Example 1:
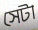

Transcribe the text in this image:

সেটা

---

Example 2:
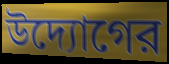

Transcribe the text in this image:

উদ্যোগের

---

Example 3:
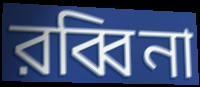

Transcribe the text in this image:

রব্বিনা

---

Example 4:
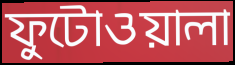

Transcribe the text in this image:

ফুটোওয়ালা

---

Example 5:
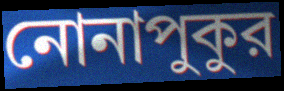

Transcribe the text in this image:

নোনাপুকুর